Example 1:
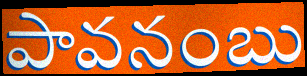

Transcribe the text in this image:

పావనంబు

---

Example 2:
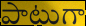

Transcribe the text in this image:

పాటుగా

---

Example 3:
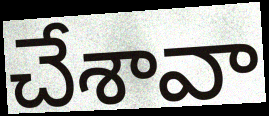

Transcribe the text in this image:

చేశావా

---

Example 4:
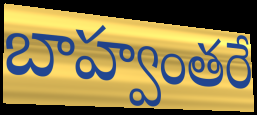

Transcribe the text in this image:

బాహ్వంతరే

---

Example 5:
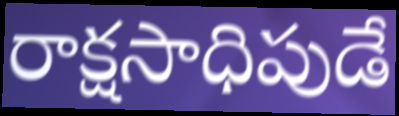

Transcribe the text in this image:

రాక్షసాధిపుడే